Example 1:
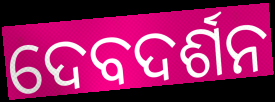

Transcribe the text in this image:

ଦେବଦର୍ଶନ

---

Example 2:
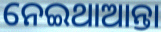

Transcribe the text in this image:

ନେଇଥାଆନ୍ତା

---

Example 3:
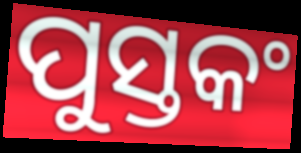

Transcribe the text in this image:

ପୁସ୍ତକଂ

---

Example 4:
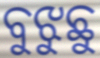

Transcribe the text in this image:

ବୁଝୁଛୁ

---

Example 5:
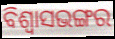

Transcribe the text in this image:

ବିଶ୍ଵାସଭଙ୍ଗର